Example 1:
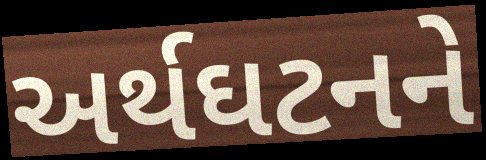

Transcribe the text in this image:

અર્થઘટનને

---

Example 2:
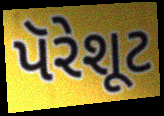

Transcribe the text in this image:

પૅરેશૂટ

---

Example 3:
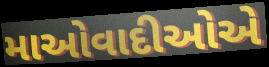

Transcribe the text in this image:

માઓવાદીઓએ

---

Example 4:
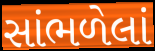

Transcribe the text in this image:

સાંભળેલાં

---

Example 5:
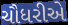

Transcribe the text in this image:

ચૌધરીએ